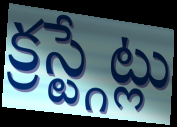
క్రస్ట్గేట్లు